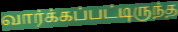
வார்க்கப்பட்டிருந்த